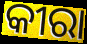
କୀରା